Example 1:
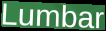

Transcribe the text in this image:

Lumbar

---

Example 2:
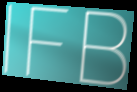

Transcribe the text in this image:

IFB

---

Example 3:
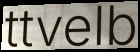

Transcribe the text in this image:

ttvelb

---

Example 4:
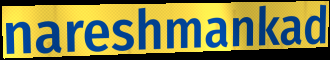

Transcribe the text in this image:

nareshmankad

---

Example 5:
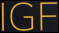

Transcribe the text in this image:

IGF